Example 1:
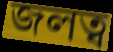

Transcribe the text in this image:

জলত্ব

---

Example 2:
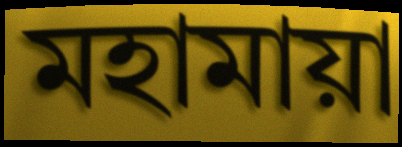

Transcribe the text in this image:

মহামায়া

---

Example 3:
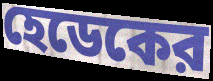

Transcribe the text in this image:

হেডেকের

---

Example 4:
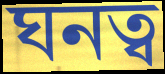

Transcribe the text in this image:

ঘনত্ব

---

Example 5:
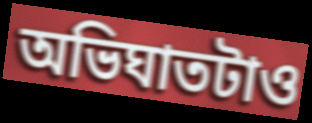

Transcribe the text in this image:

অভিঘাতটাও